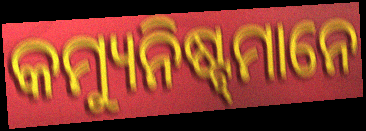
କମ୍ୟୁନିଷ୍ଟ୍‌ମାନେ